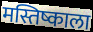
मस्तिष्काला